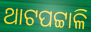
ଥାଟପଟ୍ଟାଳି